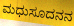
ಮಧುಸೂದನನ